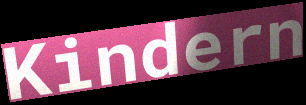
Kindern